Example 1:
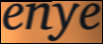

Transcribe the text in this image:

enye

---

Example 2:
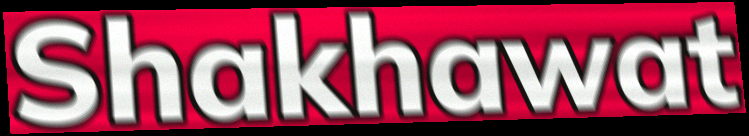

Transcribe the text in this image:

Shakhawat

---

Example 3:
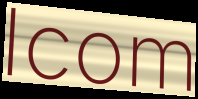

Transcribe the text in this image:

Icom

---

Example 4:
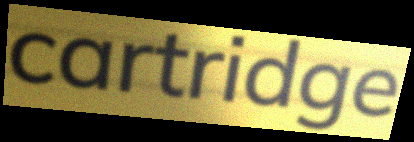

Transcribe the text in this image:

cartridge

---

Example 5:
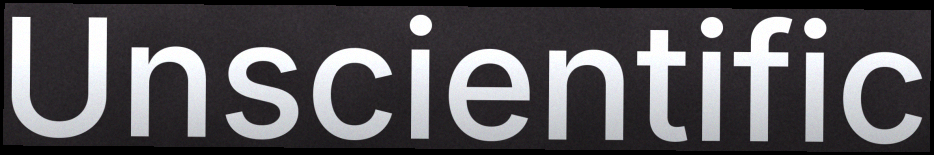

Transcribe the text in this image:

Unscientific